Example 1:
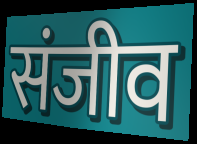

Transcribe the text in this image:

संजीव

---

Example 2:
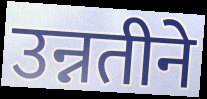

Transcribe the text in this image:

उन्नतीने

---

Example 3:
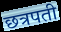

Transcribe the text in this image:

छत्रपती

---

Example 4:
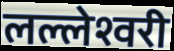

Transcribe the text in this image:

लल्लेश्वरी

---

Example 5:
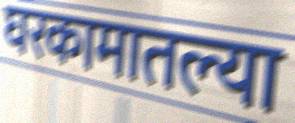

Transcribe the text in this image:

घरकामातल्या